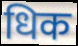
धिक